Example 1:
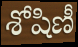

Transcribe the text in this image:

శోషిణీ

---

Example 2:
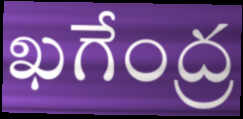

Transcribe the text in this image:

ఖగేంద్ర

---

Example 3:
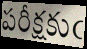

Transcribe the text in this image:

పరీక్షకుఁ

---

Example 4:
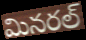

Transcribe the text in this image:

మినరల్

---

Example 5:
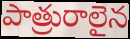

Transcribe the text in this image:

పాత్రురాలైన